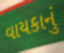
વાયકાનું